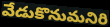
వేడుకొనుమనిరి